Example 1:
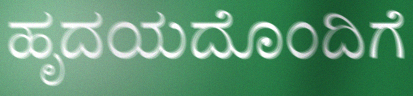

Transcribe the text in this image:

ಹೃದಯದೊಂದಿಗೆ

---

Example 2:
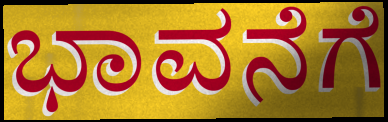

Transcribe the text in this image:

ಭಾವನೆಗೆ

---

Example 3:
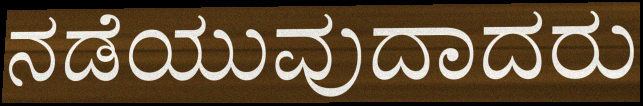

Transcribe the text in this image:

ನಡೆಯುವುದಾದರು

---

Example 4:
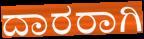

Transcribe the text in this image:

ದಾರರಾಗಿ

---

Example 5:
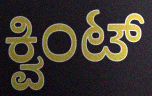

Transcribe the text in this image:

ಕ್ವಿಂಟ್